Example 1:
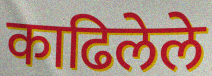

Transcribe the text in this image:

काढिलेले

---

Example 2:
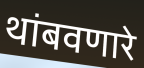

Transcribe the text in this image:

थांबवणारे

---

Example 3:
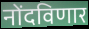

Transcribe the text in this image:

नोंदविणार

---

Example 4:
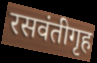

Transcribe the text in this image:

रसवंतीगृह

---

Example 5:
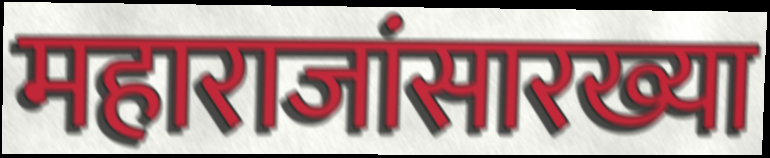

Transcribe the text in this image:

महाराजांसारख्या